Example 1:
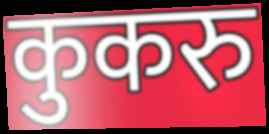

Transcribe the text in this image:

कुकरु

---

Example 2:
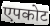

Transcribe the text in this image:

एपकोट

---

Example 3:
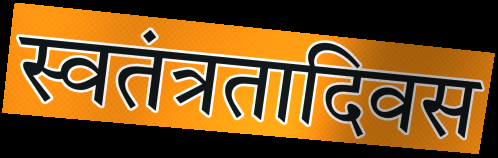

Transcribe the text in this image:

स्वतंत्रतादिवस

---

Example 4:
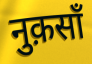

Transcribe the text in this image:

नुक़साँ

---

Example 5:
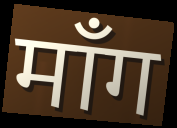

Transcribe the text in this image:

माँग